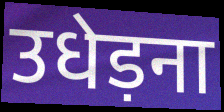
उधेड़ना